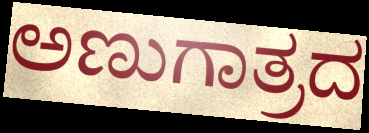
ಅಣುಗಾತ್ರದ